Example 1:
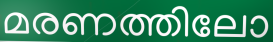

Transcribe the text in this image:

മരണത്തിലോ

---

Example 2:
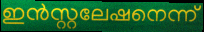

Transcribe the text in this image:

ഇൻസ്റ്റലേഷനെന്ന്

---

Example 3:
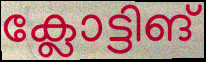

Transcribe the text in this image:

ക്ലോട്ടിങ്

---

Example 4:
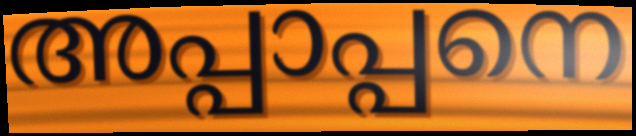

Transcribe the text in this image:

അപ്പാപ്പനെ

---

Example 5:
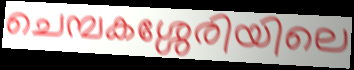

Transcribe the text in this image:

ചെമ്പകശ്ശേരിയിലെ